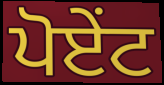
ਪੋਏਂਟ